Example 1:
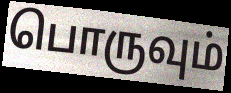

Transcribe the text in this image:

பொருவும்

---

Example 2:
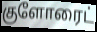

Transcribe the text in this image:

குளோரைட்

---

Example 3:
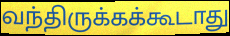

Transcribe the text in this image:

வந்திருக்கக்கூடாது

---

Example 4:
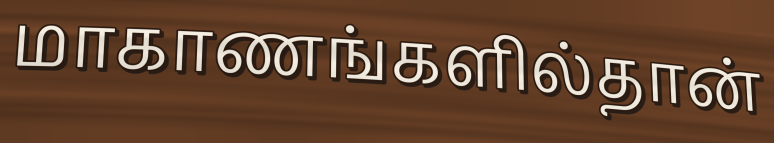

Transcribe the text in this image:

மாகாணங்களில்தான்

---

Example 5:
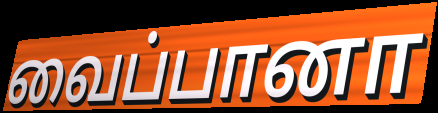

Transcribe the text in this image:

வைப்பானா